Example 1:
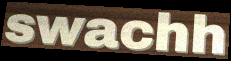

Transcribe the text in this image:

swachh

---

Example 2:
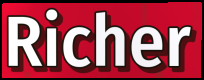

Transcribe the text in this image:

Richer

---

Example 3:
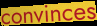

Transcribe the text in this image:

convinces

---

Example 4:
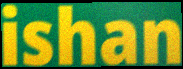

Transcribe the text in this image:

ishan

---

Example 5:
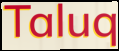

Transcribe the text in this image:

Taluq